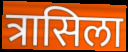
त्रासिला